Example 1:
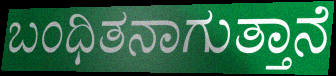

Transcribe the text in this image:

ಬಂಧಿತನಾಗುತ್ತಾನೆ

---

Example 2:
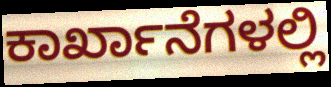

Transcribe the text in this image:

ಕಾರ್ಖಾನೆಗಳಲ್ಲಿ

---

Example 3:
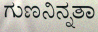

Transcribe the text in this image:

ಗುಣನಿನ್ನತಾ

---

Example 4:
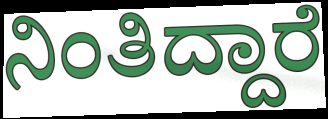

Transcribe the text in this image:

ನಿಂತಿದ್ದಾರೆ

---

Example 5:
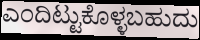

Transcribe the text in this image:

ಎಂದಿಟ್ಟುಕೊಳ್ಳಬಹುದು